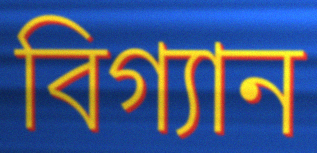
বিগ্যান